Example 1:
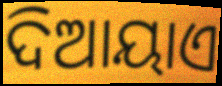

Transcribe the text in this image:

ଦିଆୟାଏ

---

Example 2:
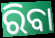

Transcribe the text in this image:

ରିବା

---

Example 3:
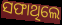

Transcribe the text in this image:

ସଫାଥିଲେ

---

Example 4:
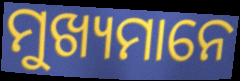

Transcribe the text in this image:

ମୁଖ୍ୟମାନେ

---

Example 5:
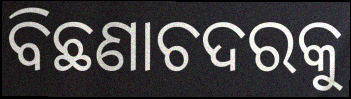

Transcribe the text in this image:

ବିଛଣାଚଦରକୁ